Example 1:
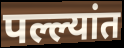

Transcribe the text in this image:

पल्ल्यांत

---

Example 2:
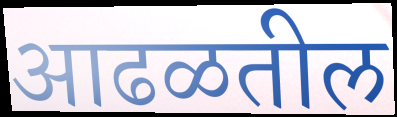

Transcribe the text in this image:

आढळतील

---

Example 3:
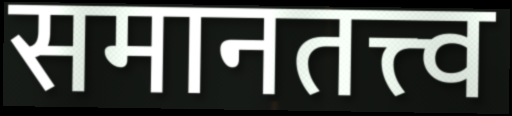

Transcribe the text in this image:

समानतत्त्व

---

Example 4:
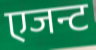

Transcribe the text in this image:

एजन्ट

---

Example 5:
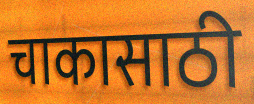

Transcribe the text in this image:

चाकासाठी